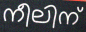
നീലിന്